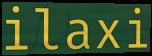
ilaxi